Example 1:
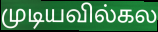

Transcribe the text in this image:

முடியவில்கல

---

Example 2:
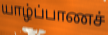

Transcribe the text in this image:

யாழ்ப்பாணச்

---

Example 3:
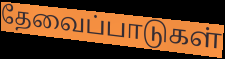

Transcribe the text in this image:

தேவைப்பாடுகள்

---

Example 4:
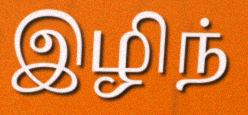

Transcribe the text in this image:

இழிந்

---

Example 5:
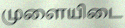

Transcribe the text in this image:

முளையிடை